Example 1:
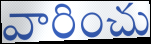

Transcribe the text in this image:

వారించు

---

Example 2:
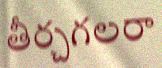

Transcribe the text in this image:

తీర్చగలరా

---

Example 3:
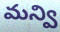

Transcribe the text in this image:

మన్వి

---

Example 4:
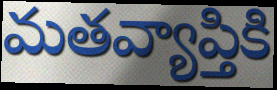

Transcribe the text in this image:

మతవ్యాప్తికి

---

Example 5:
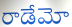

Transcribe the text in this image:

రాడేమో